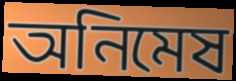
অনিমেষ